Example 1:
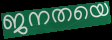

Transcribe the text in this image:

ജനതയെ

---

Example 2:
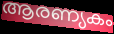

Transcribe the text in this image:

ആരണ്യകം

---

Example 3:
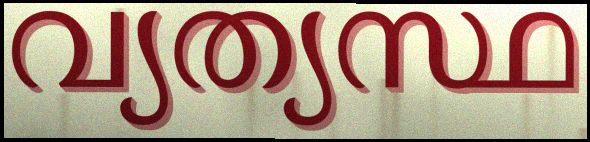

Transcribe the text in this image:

വ്യത്യസ്ഥ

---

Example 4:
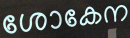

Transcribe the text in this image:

ശോകേന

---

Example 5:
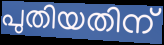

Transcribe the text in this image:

പുതിയതിന്